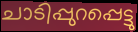
ചാടിപ്പുറപ്പെട്ടു